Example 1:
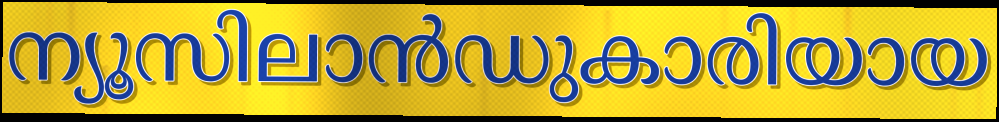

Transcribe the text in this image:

ന്യൂസിലാൻഡുകാരിയായ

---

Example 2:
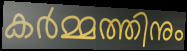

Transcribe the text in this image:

കർമ്മത്തിനും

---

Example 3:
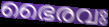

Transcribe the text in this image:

ഭൈരവഃ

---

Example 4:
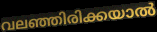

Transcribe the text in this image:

വലഞ്ഞിരിക്കയാൽ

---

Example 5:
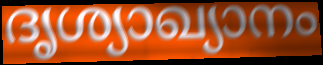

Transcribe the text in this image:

ദൃശ്യാഖ്യാനം